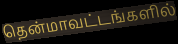
தென்மாவட்டங்களில்